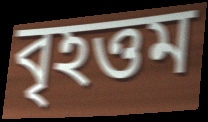
বৃহত্তম